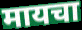
मायचा